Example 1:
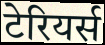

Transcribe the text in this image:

टेरियर्स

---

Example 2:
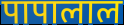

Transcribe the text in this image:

पापालाल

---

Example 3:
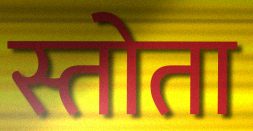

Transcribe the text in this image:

स्तोता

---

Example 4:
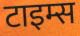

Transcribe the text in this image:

टाइम्‍स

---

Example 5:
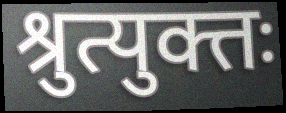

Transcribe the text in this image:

श्रुत्युक्तः